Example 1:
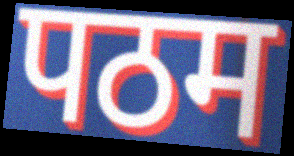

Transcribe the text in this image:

पठम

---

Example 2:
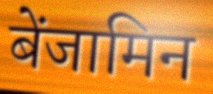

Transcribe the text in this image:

बेंजामिन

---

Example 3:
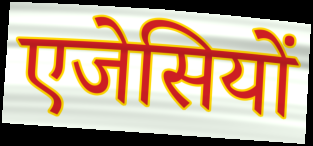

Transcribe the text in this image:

एजेसियों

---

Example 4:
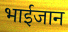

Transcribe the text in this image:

भाईजान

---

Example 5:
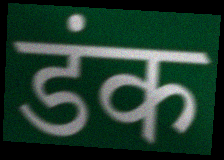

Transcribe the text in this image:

डंक